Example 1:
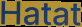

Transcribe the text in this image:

Hatat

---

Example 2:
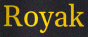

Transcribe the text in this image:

Royak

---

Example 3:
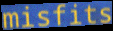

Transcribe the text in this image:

misfits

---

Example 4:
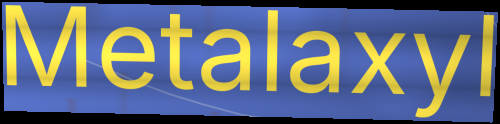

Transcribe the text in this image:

Metalaxyl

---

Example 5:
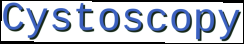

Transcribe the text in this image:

Cystoscopy